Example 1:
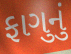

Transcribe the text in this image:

ફાગુનું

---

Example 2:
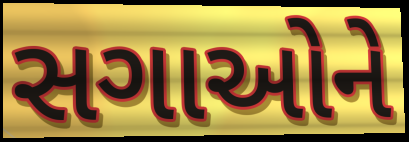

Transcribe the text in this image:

સગાઓને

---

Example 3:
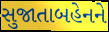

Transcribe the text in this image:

સુજાતાબહેનને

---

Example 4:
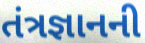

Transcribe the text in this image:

તંત્રજ્ઞાનની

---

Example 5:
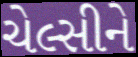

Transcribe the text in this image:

ચેલ્સીને